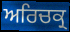
ਅਰਿਚਕ੍ਰ